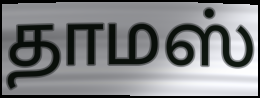
தாமஸ்